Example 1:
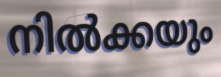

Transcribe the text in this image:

നിൽക്കയും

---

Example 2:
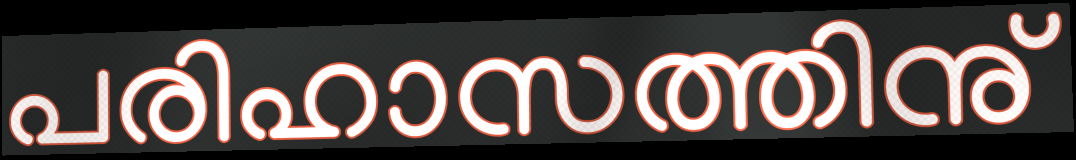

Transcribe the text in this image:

പരിഹാസത്തിനു്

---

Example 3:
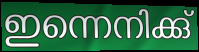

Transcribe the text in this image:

ഇന്നെനിക്കു്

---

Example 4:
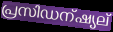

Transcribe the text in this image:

പ്രസിഡന്ഷ്യല്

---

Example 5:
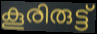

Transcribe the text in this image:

കൂരിരുട്ട്